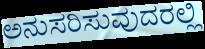
ಅನುಸರಿಸುವುದರಲ್ಲಿ